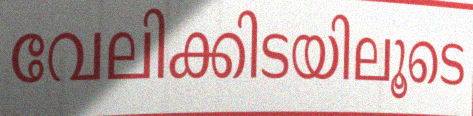
വേലിക്കിടയിലൂടെ